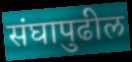
संघापुढील